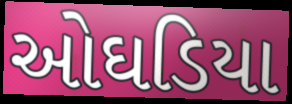
ઓઘડિયા